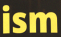
ism